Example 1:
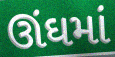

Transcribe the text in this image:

ઊંઘમાં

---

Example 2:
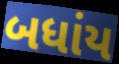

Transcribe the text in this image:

બધાંય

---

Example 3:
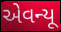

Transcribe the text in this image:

એવન્યૂ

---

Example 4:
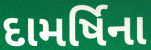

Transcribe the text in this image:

દામર્ષિના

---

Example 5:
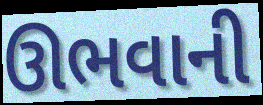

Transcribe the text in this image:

ઊભવાની